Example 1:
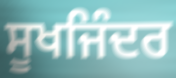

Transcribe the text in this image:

ਸੂਖਜਿੰਦਰ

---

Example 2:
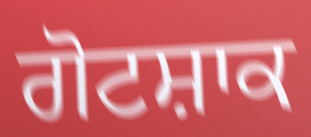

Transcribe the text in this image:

ਗੋਟਸ਼ਾਕ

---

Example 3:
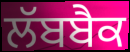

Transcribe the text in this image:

ਲੱਬਬੈਕ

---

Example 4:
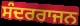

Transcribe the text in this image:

ਸੰਦਰਰਾਜਨ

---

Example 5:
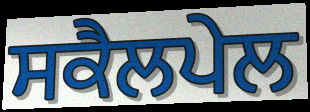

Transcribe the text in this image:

ਸਕੈਲਪੇਲ